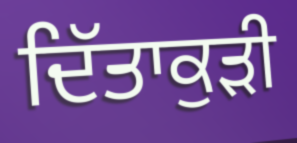
ਦਿੱਤਾਕੁੜੀ